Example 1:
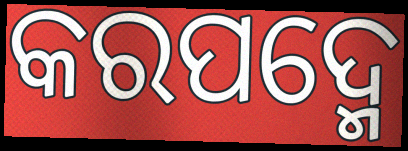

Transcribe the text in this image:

କରପଦ୍ମେ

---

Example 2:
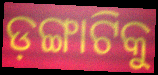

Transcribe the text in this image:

ଡ଼ଙ୍ଗାଟିକୁ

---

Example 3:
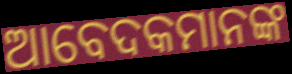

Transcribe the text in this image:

ଆବେଦକମାନଙ୍କ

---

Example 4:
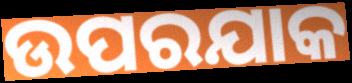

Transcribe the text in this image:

ଉପରଯାକ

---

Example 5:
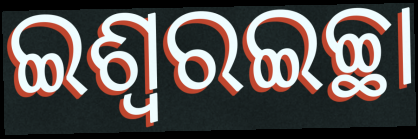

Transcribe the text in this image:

ଇଶ୍ୱରଇଚ୍ଛା